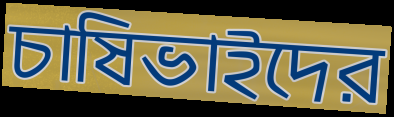
চাষিভাইদের